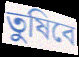
তুষিবে